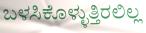
ಬಳಸಿಕೊಳ್ಳುತ್ತಿರಲಿಲ್ಲ